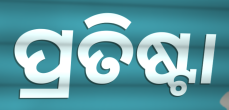
ପ୍ରତିଷ୍ଟା